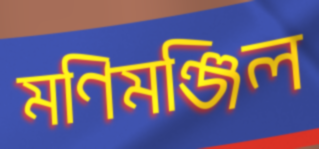
মণিমঞ্জিল